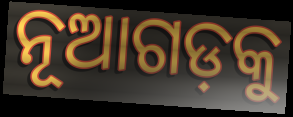
ନୂଆଗଡ଼କୁ